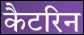
कैटरिन